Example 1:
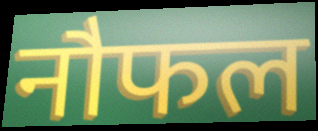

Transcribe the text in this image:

नौफल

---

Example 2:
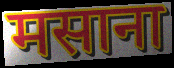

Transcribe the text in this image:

मसाना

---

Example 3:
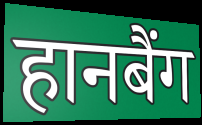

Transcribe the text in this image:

हानबैंग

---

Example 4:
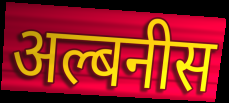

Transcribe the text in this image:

अल्बनीस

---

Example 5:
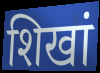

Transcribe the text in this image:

शिखां